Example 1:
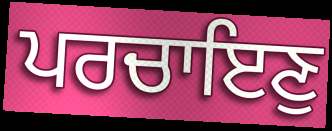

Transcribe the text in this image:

ਪਰਚਾਇਣੁ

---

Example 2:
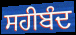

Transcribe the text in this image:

ਸਹੀਬੰਦ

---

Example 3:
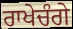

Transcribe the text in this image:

ਰਾਖੇਚੰਗੇ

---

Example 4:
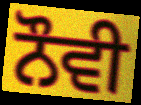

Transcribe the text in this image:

ਨੌਵੀ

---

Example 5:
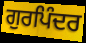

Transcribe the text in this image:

ਗੁਰਪਿੰਦਰ